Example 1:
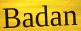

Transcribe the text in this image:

Badan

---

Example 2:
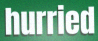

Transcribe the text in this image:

hurried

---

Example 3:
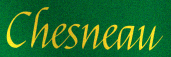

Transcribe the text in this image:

Chesneau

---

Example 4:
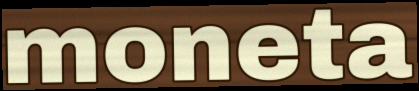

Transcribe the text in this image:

moneta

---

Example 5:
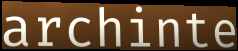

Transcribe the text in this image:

archinte